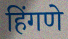
हिंगणे